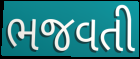
ભજવતી